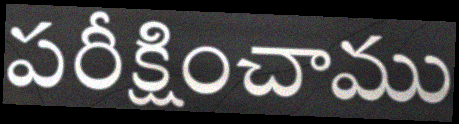
పరీక్షించాము